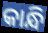
କାନ୍ଧି